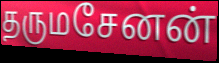
தருமசேனன்